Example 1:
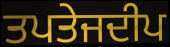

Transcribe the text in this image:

ਤਪਤੇਜਦੀਪ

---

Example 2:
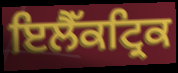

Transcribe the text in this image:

ਇਲੈੱਕਟ੍ਰਿਕ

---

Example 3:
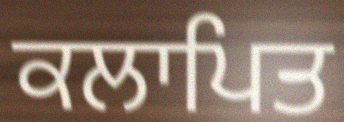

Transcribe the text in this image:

ਕਲਾਪਿਤ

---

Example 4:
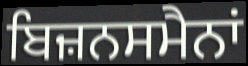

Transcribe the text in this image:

ਬਿਜ਼ਨਸਮੈਨਾਂ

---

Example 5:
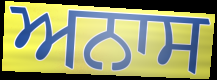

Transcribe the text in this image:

ਅਨਾਸ